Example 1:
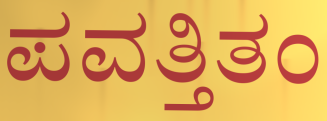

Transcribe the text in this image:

ಪವತ್ತಿತಂ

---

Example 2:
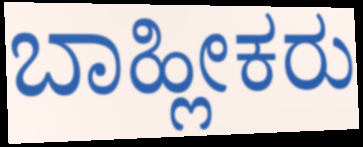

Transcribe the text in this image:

ಬಾಹ್ಲೀಕರು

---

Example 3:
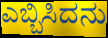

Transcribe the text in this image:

ಎಬ್ಬಿಸಿದನು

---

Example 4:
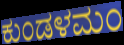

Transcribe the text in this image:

ಕುಂಡಳಮಂ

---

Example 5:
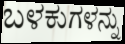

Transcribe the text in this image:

ಬಳಕುಗಳನ್ನು